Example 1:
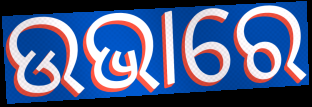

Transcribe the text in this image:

ଉଭାରେ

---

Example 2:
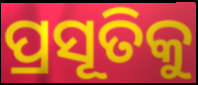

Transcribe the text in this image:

ପ୍ରସୂତିକୁ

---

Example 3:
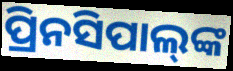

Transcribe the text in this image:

ପ୍ରିନସିପାଲ୍‍ଙ୍କ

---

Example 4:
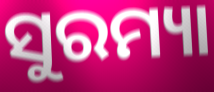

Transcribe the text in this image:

ସୁରମ୍ୟା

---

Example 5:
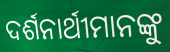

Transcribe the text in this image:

ଦର୍ଶନାର୍ଥୀମାନଙ୍କୁ